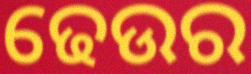
ଢେଉର